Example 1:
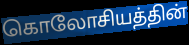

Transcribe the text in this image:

கொலோசியத்தின்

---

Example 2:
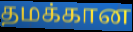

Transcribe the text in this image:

தமக்கான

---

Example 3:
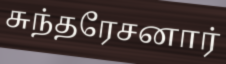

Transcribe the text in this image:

சுந்தரேசனார்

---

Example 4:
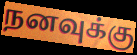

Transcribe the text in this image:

நனவுக்கு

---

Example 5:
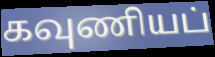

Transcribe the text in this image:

கவுணியப்